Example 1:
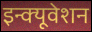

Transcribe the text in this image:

इन्क्यूवेशन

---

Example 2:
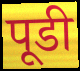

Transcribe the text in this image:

पूडी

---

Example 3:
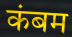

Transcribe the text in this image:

कंबम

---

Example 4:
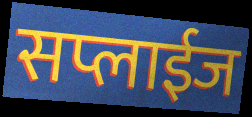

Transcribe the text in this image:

सप्लाईज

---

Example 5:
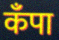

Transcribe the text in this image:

कँपा